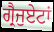
ਗ੍ਰੈਜੁਏਟਾਂ